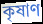
কৃষাণ